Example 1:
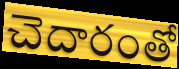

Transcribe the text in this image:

చెదారంతో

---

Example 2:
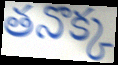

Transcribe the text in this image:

తనొక్క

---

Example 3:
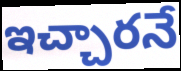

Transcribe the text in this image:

ఇచ్చారనే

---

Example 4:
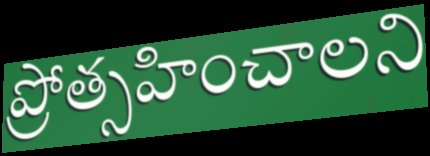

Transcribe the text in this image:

ప్రోత్సహించాలని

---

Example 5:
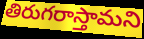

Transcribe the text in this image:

తిరుగరాస్తామని